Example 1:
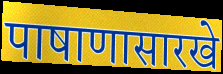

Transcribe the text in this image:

पाषाणासारखे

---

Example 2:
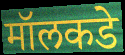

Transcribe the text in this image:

मॉलकडे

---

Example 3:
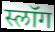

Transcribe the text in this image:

स्लॉग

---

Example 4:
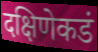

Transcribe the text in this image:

दक्षिणेकडं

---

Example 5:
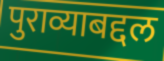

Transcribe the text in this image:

पुराव्याबद्दल